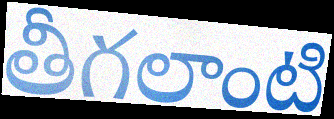
తీగలాంటి